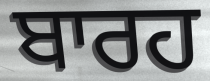
ਬਾਰਹ